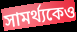
সামর্থ্যকেও